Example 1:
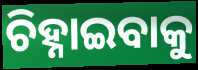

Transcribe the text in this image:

ଚିହ୍ନାଇବାକୁ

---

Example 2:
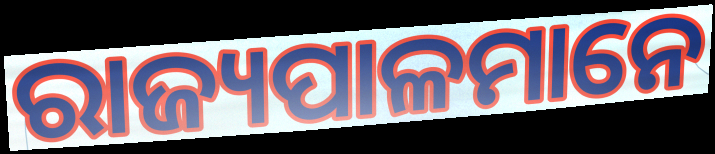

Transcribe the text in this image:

ରାଜ୍ୟପାଳମାନେ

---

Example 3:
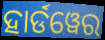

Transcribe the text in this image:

ହାର୍ଡୱେର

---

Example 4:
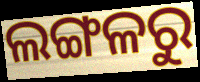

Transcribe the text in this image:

ଲଙ୍ଗଳରୁ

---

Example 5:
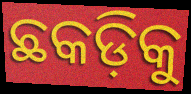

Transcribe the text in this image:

ଛକଡ଼ିକୁ